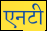
एनटी